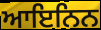
ਆਇਨਿਨ